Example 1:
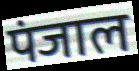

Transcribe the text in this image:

पंजाल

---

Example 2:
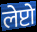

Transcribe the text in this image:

लेप्टो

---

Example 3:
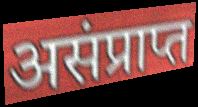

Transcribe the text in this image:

असंप्राप्त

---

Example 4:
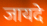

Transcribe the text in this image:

जायदे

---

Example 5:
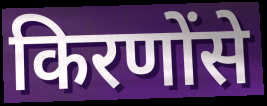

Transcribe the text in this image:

किरणोंसे